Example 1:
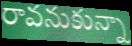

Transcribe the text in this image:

రావనుకున్నా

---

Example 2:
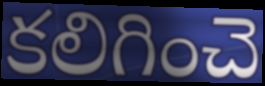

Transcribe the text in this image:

కలిగించె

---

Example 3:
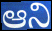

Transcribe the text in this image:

ఆని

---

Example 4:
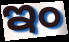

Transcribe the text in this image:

ఇం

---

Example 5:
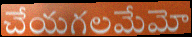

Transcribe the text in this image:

చేయగలమేమో